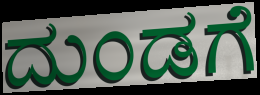
ದುಂಡಗೆ